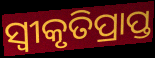
ସ୍ୱୀକୃତିପ୍ରାପ୍ତ